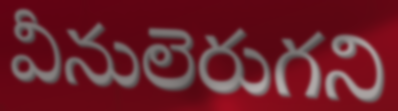
వీనులెరుగని